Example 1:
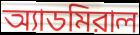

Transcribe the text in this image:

অ্যাডমিরাল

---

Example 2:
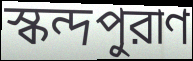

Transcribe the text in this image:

স্কন্দপুরাণ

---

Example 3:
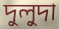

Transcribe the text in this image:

দুলুদা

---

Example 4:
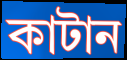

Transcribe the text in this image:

কাটান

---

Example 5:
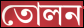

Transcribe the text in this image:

তোলন